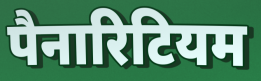
पैनारिटियम